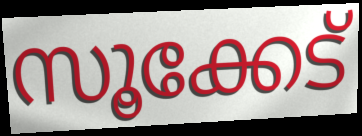
സൂക്കേട്